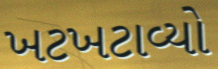
ખટખટાવ્યો